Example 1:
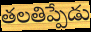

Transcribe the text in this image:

తలతిప్పేడు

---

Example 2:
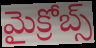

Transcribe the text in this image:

మైక్రోబ్స్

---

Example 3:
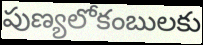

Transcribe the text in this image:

పుణ్యలోకంబులకు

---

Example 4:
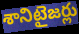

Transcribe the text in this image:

శానిటైజర్లు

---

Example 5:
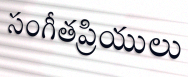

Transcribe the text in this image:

సంగీతప్రియులు